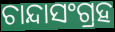
ଚାନ୍ଦାସଂଗ୍ରହ